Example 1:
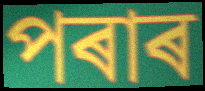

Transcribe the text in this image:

পৰাৰ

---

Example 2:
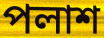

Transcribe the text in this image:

পলাশ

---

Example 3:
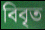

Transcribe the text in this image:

বিবৃত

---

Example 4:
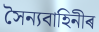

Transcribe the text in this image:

সৈন্যবাহিনীৰ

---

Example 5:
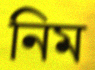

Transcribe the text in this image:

নিম